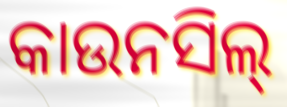
କାଉନସିଲ୍